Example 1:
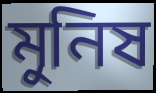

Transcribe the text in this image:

মুনিষ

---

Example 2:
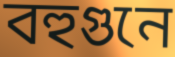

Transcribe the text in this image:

বহুগুনে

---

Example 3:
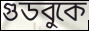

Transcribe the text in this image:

গুডবুকে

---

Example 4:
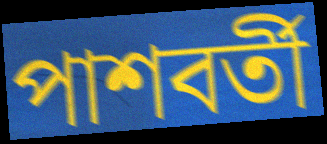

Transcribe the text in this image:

পাশবর্তী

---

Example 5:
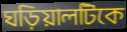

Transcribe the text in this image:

ঘড়িয়ালটিকে